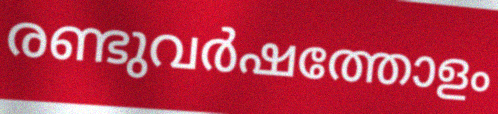
രണ്ടുവർഷത്തോളം